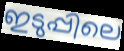
ഇടുപ്പിലെ